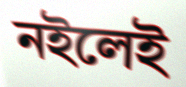
নইলেই